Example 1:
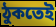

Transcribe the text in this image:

ঠুকতেই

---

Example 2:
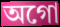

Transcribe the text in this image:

অগো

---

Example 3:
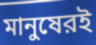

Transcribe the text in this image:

মানুষেরই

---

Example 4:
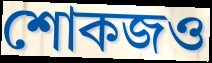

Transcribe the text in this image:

শোকজও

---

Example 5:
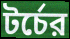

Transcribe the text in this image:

টর্চের